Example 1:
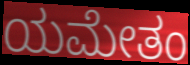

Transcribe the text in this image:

ಯಮೇತಂ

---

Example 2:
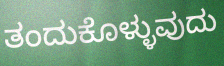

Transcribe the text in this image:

ತಂದುಕೊಳ್ಳುವುದು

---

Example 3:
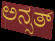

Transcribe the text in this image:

ಅನ್ಸತ್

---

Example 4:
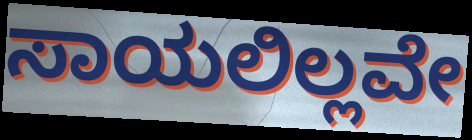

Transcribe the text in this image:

ಸಾಯಲಿಲ್ಲವೇ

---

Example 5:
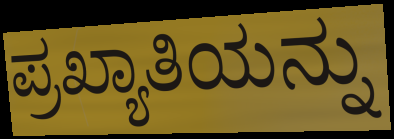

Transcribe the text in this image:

ಪ್ರಖ್ಯಾತಿಯನ್ನು